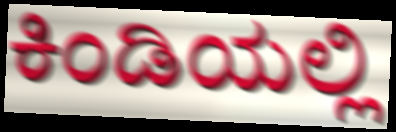
ಕಿಂಡಿಯಲ್ಲಿ